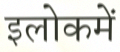
इलोकमें